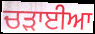
ਚੜਾਈਆ